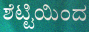
ಶೆಟ್ಟಿಯಿಂದ